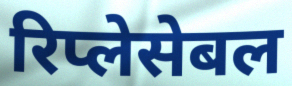
रिप्लेसेबल